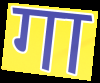
गा